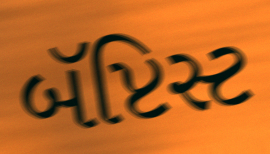
બૅપ્ટિસ્ટ